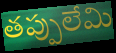
తప్పులేమి